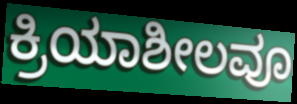
ಕ್ರಿಯಾಶೀಲವೂ